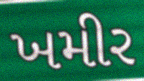
ખમીર